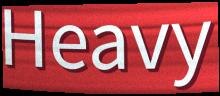
Heavy